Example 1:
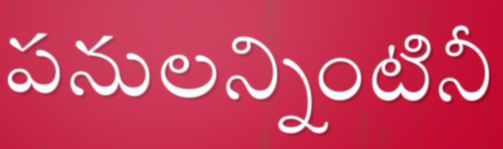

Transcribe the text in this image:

పనులన్నింటినీ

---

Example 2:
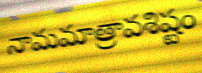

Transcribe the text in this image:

నామమాత్రావశిష్టం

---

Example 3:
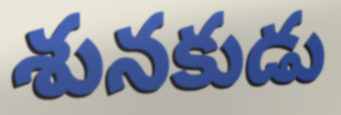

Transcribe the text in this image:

శునకుడు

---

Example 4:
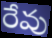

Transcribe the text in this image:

రేవు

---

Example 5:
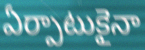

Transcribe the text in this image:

ఏర్పాటుకైనా